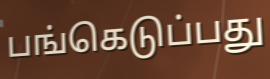
பங்கெடுப்பது